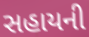
સહાયની